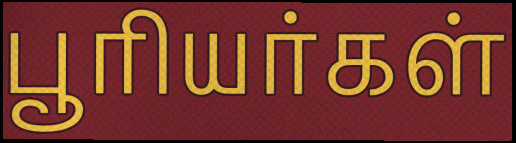
பூரியர்கள்